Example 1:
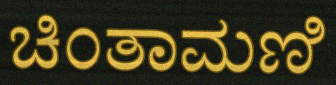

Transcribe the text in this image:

ಚಿಂತಾಮಣಿ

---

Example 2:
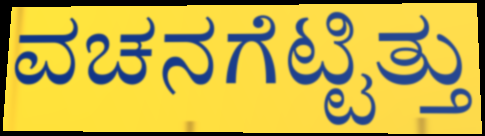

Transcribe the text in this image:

ವಚನಗೆಟ್ಟಿತ್ತು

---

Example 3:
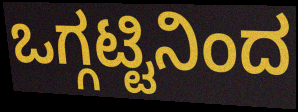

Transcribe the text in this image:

ಒಗ್ಗಟ್ಟಿನಿಂದ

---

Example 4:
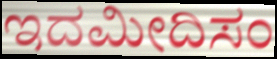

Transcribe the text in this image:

ಇದಮೀದಿಸಂ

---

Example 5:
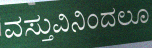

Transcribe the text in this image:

ವಸ್ತುವಿನಿಂದಲೂ